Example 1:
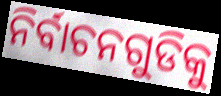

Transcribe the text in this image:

ନିର୍ବାଚନଗୁଡିକୁ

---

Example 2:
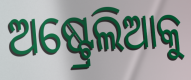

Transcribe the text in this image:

ଅଷ୍ଟ୍ରେଲିଆକୁ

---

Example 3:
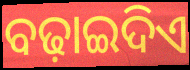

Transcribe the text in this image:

ବଢ଼ାଇଦିଏ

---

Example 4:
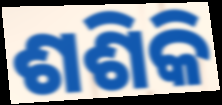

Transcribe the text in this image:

ଶଶିକି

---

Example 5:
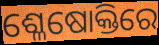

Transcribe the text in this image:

ଶ୍ଳେଷୋକ୍ତିରେ